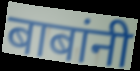
बाबांनी